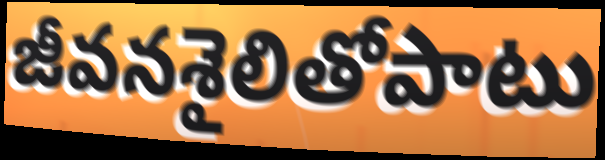
జీవనశైలితోపాటు